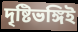
দৃষ্টিভঙ্গিই